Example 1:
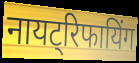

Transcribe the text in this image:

नायट्रिफायिंग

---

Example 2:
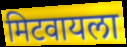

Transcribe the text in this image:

मिटवायला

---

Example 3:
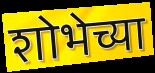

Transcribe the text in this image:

शोभेच्या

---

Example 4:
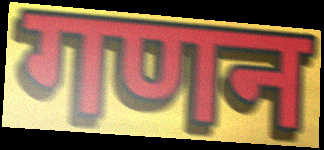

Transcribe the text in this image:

गणन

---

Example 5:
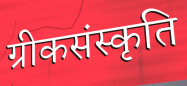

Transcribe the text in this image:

ग्रीकसंस्कृति